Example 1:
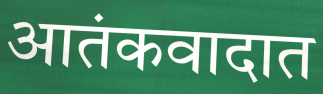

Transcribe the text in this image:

आतंकवादात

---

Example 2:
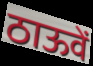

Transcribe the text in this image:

ठाऊवें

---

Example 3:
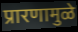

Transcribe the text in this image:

प्रारणामुळे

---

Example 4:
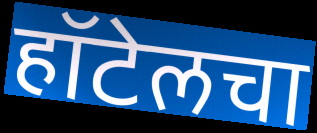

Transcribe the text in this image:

हॉटेलचा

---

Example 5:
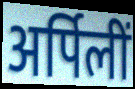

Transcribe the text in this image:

अर्पिलीं